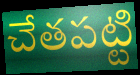
చేతపట్టి